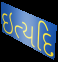
ઇત્યદિ